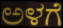
ಅಳಗೆ